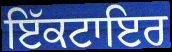
ਇੱਕਟਾਇਰ